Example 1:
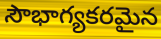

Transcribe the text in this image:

సౌభాగ్యకరమైన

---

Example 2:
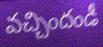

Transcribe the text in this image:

వచ్చిందండీ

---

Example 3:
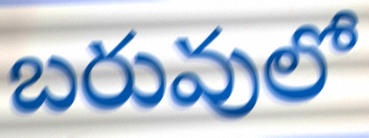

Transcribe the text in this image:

బరువులో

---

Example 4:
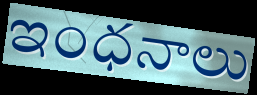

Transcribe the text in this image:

ఇంధనాలు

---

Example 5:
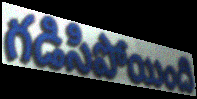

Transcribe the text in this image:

గడిసిపోయింది